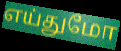
எய்துமோ